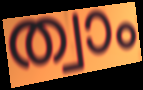
ത്വാം